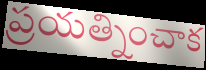
ప్రయత్నించాక